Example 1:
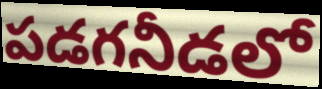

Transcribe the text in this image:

పడగనీడలో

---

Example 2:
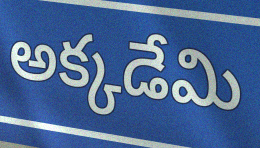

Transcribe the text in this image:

అక్కడేమి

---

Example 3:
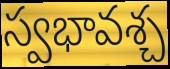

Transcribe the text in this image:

స్వభావశ్చ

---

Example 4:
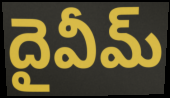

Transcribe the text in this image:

దైవీమ్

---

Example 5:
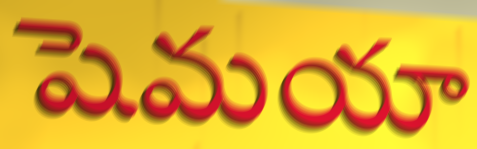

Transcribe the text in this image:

షెమయా